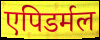
एपिडर्मल